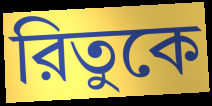
রিতুকে